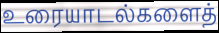
உரையாடல்களைத்